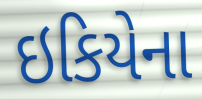
ઇકિયેના